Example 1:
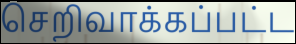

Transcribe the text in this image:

செறிவாக்கப்பட்ட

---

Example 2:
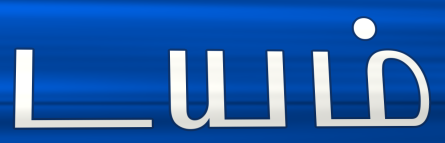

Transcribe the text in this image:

டயம்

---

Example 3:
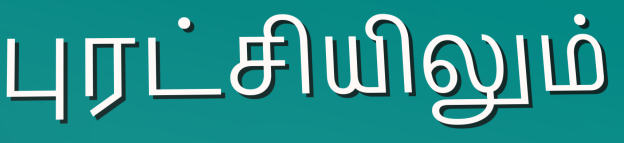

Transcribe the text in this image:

புரட்சியிலும்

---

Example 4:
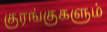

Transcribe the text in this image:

குரங்குகளும்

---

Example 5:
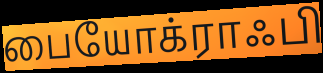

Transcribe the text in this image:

பையோக்ராஃபி